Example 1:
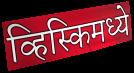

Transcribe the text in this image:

व्हिस्किमध्ये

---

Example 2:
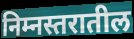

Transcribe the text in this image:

निम्नस्तरातील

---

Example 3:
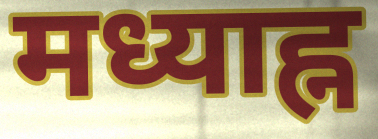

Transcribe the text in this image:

मध्याह्न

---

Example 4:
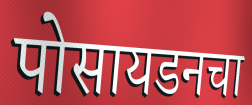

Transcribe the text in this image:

पोसायडनचा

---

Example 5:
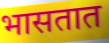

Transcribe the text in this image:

भासतात